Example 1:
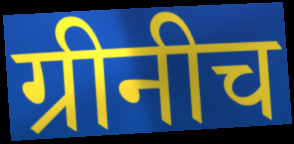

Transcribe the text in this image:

ग्रीनीच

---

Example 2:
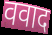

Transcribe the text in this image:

ववाद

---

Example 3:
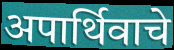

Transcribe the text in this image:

अपार्थिवाचे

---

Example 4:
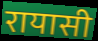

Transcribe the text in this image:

रायासी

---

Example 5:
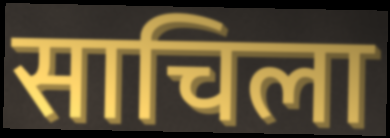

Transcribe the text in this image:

साचिला